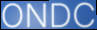
ONDC